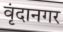
वृंदानगर